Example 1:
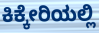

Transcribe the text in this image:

ಕಿಕ್ಕೇರಿಯಲ್ಲಿ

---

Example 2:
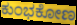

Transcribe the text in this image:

ಕುಂಭಕೋಣ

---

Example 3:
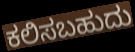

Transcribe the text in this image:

ಕಲಿಸಬಹುದು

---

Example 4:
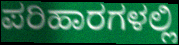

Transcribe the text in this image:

ಪರಿಹಾರಗಳಲ್ಲಿ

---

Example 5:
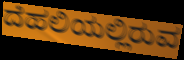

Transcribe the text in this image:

ದೆಹಲಿಯಲ್ಲಿರುವ